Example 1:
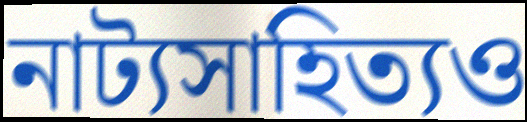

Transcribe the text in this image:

নাট্যসাহিত্যও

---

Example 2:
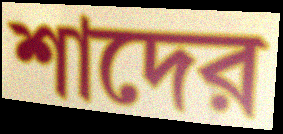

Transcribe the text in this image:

শাদের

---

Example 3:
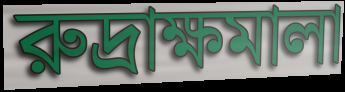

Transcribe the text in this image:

রুদ্রাক্ষমালা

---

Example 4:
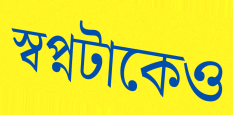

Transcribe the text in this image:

স্বপ্নটাকেও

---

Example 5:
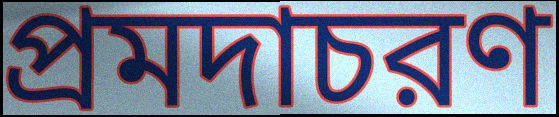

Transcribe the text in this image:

প্রমদাচরণ